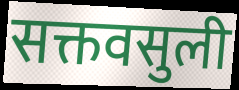
सक्तवसुली